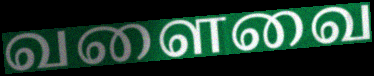
வளைவை